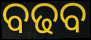
ବଢବ